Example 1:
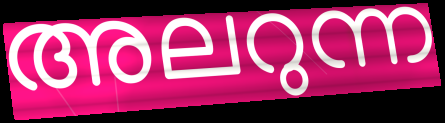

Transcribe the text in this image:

അലറുന്ന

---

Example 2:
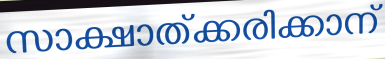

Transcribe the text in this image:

സാക്ഷാത്ക്കരിക്കാന്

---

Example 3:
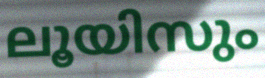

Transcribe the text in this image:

ലൂയിസും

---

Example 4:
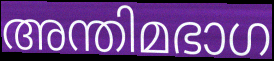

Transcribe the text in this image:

അന്തിമഭാഗ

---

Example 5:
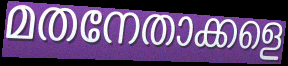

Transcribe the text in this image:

മതനേതാക്കളെ